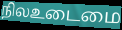
நிலஉடைமை